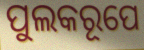
ପୁଲକରୂପେ